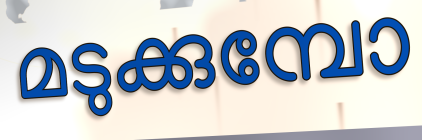
മടുക്കുമ്പോ